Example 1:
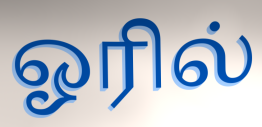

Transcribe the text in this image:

ஓரில்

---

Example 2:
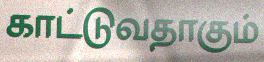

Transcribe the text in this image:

காட்டுவதாகும்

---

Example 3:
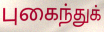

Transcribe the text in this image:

புகைந்துக்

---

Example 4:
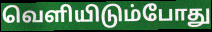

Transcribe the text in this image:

வெளியிடும்போது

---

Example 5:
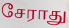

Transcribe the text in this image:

சேராது